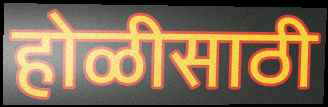
होळीसाठी